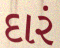
દારં